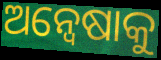
ଅନ୍ୱେଷାକୁ